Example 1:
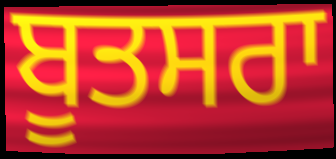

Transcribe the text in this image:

ਬੂਤਸਰਾ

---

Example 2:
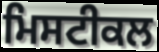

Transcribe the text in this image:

ਮਿਸਟੀਕਲ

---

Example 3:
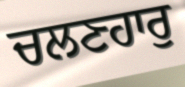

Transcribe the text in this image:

ਚਲਣਹਾਰੁ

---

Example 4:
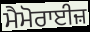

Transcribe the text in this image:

ਮੈਮੋਰਾਈਜ਼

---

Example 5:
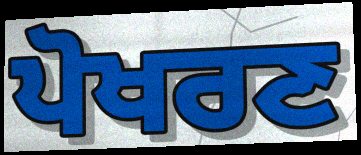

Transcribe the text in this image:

ਪੋਖਰਣ